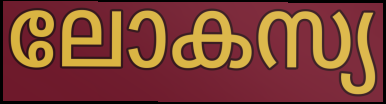
ലോകസ്യ